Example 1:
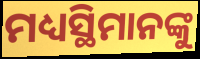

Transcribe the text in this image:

ମଧ୍ୟସ୍ଥିମାନଙ୍କୁ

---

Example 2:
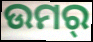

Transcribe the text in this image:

ଉମର୍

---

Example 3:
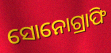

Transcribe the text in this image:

ସୋନୋଗ୍ରାଫି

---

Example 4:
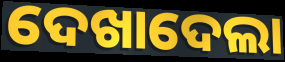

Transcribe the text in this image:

ଦେଖାଦେଲା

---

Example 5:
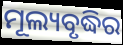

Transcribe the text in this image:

ମୂଲ୍ୟବୃଦ୍ଧିର